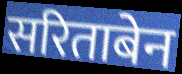
सरिताबेन